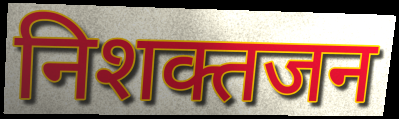
निशक्तजन